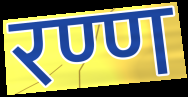
रण्ण